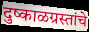
दुष्काळग्रस्तांचे